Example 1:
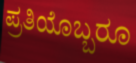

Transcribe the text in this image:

ಪ್ರತಿಯೊಬ್ಬರೂ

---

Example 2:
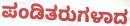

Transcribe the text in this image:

ಪಂಡಿತರುಗಳಾದ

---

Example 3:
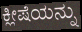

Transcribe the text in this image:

ಕ್ಲೀಷೆಯನ್ನು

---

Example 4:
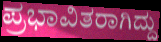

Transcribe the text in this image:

ಪ್ರಭಾವಿತರಾಗಿದ್ದು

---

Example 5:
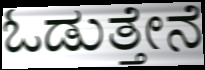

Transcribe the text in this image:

ಓಡುತ್ತೇನೆ